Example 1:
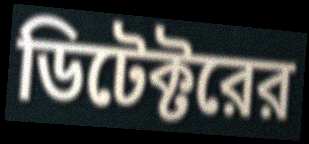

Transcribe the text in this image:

ডিটেক্টরের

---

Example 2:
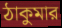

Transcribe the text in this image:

ঠাকুমার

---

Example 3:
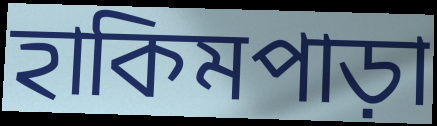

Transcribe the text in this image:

হাকিমপাড়া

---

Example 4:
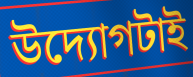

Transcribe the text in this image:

উদ্যোগটাই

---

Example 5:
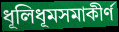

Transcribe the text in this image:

ধূলিধূমসমাকীর্ণ